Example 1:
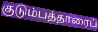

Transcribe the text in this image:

குடும்பத்தாரைப்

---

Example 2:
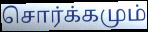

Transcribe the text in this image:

சொர்க்கமும்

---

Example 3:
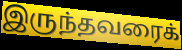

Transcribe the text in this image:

இருந்தவரைக்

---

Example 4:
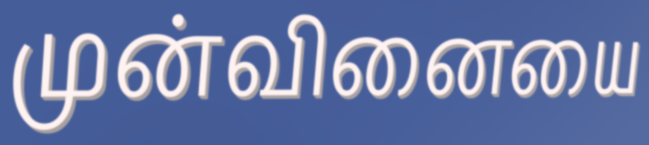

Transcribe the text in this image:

முன்வினையை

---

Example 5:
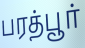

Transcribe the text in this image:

பரத்பூர்